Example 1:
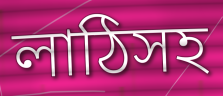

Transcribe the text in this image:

লাঠিসহ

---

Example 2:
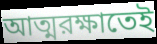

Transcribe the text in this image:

আত্মরক্ষাতেই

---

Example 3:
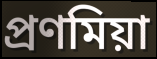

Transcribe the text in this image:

প্রণমিয়া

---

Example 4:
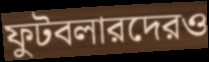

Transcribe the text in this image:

ফুটবলারদেরও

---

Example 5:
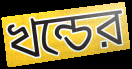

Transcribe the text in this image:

খন্ডের